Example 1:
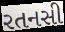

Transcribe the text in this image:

રતનસી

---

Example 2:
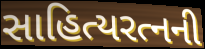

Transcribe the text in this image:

સાહિત્યરત્નની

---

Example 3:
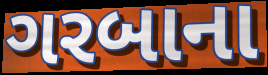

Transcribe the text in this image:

ગરબાના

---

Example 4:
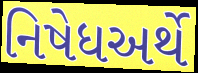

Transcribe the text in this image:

નિષેધઅર્થે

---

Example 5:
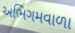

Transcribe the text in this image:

અભિગમવાળા